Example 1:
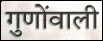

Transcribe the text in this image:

गुणोंवाली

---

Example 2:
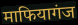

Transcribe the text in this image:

माफियागंज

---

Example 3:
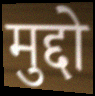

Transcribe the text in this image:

मुद्दो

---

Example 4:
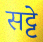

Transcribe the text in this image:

सट्टे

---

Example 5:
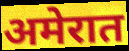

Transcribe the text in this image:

अमेरात